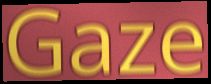
Gaze